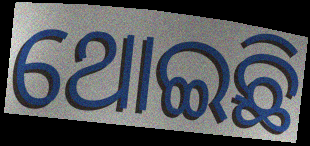
ଥୋଇଛି